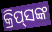
କ୍ରିପ୍‌ସଙ୍କ